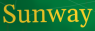
Sunway